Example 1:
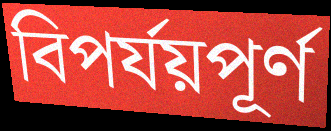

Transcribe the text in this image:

বিপর্যয়পূর্ণ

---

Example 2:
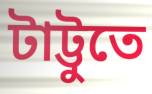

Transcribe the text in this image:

টাট্টুতে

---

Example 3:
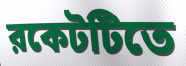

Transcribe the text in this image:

রকেটটিতে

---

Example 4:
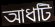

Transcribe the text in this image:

আধটি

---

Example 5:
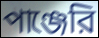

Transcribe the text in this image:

পাঞ্জেরি